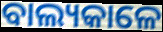
ବାଲ୍ୟକାଳେ